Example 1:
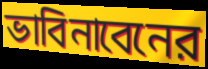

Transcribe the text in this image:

ভাবিনাবেনের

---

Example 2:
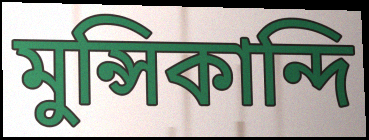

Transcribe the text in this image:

মুন্সিকান্দি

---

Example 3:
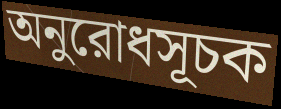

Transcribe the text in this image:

অনুরোধসূচক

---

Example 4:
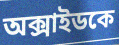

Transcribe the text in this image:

অক্সাইডকে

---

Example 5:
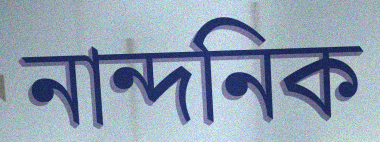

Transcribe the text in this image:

নান্দনিক